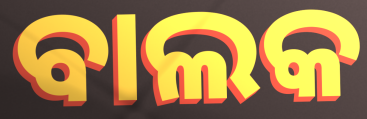
ବାଲକ